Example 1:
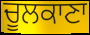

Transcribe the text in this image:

ਚੂਲਕਾਣਾ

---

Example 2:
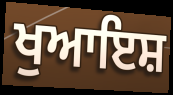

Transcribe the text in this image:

ਖੁਆਇਸ਼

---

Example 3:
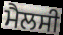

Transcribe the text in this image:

ਮੈਲਸੀ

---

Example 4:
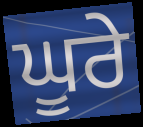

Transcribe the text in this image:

ਘੂਰੇ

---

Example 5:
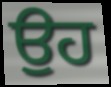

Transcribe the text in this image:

ਉੁਹ